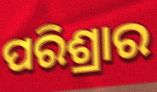
ପରିଶ୍ରାର